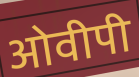
ओवीपी